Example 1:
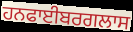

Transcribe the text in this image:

ਹਨਫਾਈਬਰਗਲਾਸ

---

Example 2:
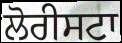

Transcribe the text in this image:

ਲੋਰੀਸਟਾ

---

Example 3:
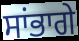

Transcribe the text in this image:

ਸਾਂਭਾਗੇ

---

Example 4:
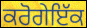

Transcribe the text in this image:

ਕਰੋਗੇਇੱਕ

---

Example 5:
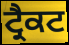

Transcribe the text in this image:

ਟ੍ਰੈਕਟ